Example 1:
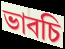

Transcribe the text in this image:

ভাবচি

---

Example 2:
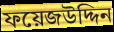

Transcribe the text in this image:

ফয়েজউদ্দিন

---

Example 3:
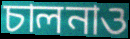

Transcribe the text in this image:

চালনাও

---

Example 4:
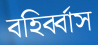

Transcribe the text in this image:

বহির্ব্বাস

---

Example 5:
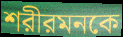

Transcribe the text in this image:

শরীরমনকে